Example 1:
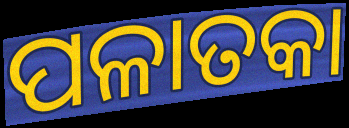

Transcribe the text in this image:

ପଳାତକା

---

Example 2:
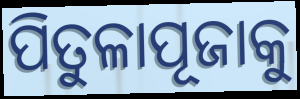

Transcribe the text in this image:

ପିତୁଳାପୂଜାକୁ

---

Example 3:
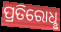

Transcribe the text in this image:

ପ୍ରତିରୋଧୢ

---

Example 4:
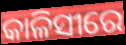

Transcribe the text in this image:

କାଳିସୀରେ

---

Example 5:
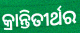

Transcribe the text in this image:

କ୍ରାନ୍ତିତୀର୍ଥର